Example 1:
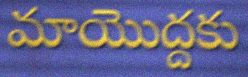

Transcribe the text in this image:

మాయొద్దకు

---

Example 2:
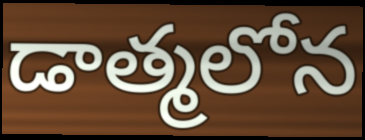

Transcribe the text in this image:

డాత్మలోన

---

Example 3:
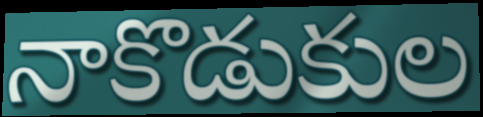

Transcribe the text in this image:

నాకొడుకుల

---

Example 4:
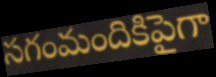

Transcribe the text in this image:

సగంమందికిపైగా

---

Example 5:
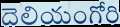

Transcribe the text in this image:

దెలియంగోరి